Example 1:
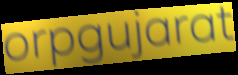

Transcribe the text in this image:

orpgujarat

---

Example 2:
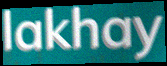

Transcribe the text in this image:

lakhay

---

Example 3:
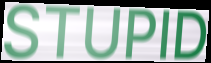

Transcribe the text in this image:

STUPID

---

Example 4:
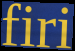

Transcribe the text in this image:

firi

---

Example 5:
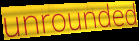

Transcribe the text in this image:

unrounded